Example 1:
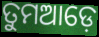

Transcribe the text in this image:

ତୁମଆଡ଼େ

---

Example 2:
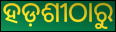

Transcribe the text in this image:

ହଡ଼ଶୀଠାରୁ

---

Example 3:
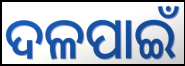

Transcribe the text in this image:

ଦଳପାଇଁ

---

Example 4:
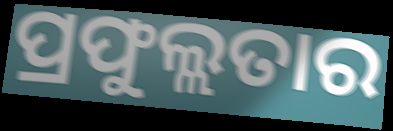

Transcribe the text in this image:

ପ୍ରଫୁଲ୍ଲତାର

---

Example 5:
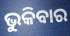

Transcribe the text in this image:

ଭୁକିବାର